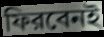
ফিরবেনই